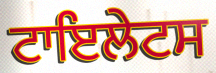
ਟਾਇਲੇਟਸ